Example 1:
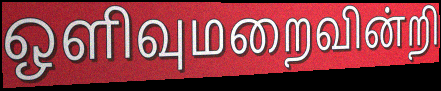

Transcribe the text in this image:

ஒளிவுமறைவின்றி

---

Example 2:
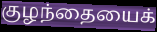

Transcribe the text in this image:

குழந்தையைக்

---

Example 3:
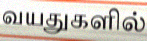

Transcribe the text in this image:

வயதுகளில்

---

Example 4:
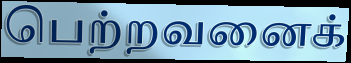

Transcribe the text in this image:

பெற்றவனைக்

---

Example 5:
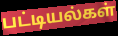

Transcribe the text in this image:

பட்டியல்கள்